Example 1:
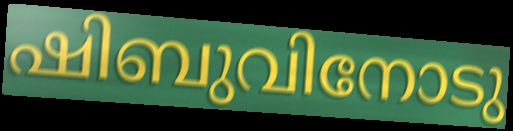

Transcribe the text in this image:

ഷിബുവിനോടു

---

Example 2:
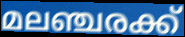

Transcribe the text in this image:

മലഞ്ചരക്ക്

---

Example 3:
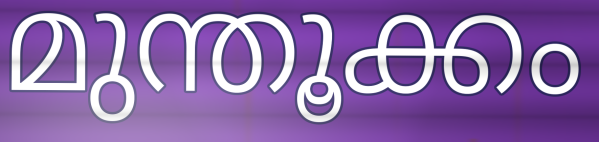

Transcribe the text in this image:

മുന്തൂക്കം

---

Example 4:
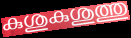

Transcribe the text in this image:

കുശുകുശുത്തു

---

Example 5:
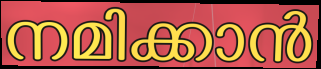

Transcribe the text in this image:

നമിക്കാൻ